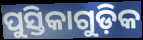
ପୁସ୍ତିକାଗୁଡ଼ିକ